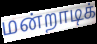
மன்றாடிக்